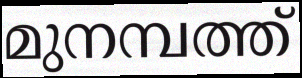
മുനമ്പത്ത്